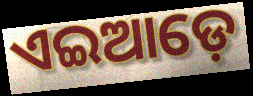
ଏଇଆଡ଼େ